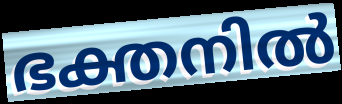
ഭക്തനിൽ